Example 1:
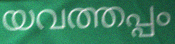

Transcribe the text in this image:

യവത്തപ്പം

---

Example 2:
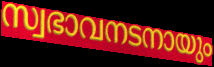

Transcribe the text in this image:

സ്വഭാവനടനായും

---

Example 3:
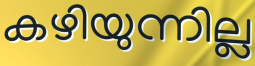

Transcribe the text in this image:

കഴിയുന്നില്ല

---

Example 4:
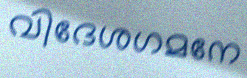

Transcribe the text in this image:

വിദേശഗമനേ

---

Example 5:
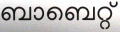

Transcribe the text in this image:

ബാബെറ്റ്